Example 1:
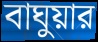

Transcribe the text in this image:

বাঘুয়ার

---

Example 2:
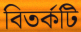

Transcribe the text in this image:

বিতর্কটি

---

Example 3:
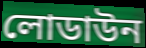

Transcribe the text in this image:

লোডাউন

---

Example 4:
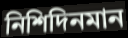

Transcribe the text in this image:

নিশিদিনমান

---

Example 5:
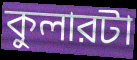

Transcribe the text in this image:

কুলারটা